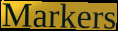
Markers